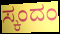
ಸ್ಕಂದಂ